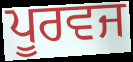
ਪੂਰਵਜ